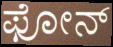
ಫೋನ್